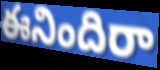
ఈనిందిరా